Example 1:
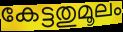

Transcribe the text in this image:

കേട്ടതുമൂലം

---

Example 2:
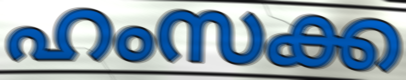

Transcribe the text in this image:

ഹംസക്ക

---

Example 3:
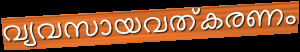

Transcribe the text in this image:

വ്യവസായവത്കരണം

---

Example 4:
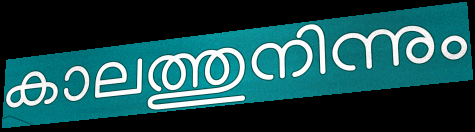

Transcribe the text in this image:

കാലത്തുനിന്നും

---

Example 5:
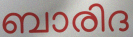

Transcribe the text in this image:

ബാരിദ